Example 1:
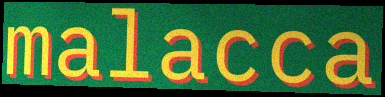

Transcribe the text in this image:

malacca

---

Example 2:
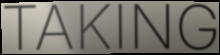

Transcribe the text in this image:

TAKING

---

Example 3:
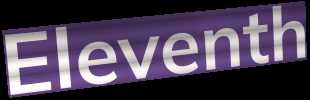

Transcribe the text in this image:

Eleventh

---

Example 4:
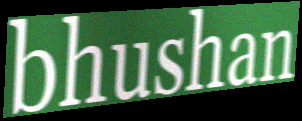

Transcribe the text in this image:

bhushan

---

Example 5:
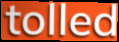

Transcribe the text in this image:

tolled